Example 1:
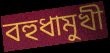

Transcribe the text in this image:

বহুধামুখী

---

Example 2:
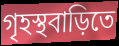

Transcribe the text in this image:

গৃহস্থবাড়িতে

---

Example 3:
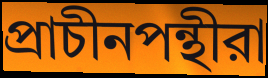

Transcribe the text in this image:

প্রাচীনপন্থীরা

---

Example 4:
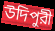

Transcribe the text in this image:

উদিপুরী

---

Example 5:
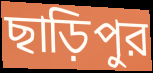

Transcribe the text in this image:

ছাড়িপুর